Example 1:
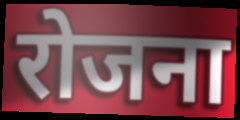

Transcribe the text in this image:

रोजना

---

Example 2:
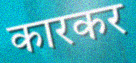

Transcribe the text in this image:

कारकर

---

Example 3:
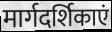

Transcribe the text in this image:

मार्गदर्शिकाएं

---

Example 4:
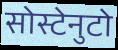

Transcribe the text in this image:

सोस्टेनुटो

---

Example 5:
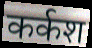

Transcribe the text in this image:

कर्कश